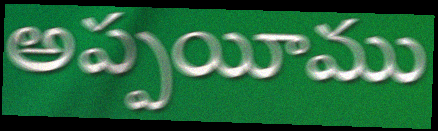
అప్పయీము